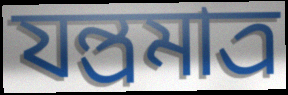
যন্ত্রমাত্র